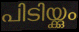
പിടിയ്ക്കും